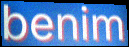
benim